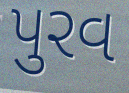
પુરવ